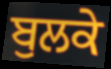
ਬੁਲਕੇ